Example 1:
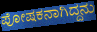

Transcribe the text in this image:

ಪೋಷಕನಾಗಿದ್ದನು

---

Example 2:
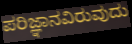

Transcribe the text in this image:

ಪರಿಜ್ಞಾನವಿರುವುದು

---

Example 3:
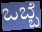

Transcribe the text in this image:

ಒಬ್ಬೆ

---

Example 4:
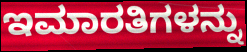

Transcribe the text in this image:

ಇಮಾರತಿಗಳನ್ನು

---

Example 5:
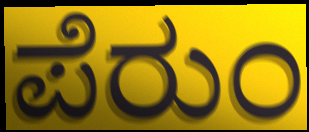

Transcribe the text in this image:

ಪೆರುಂ